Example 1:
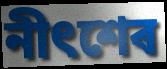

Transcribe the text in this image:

নীৎশেৰ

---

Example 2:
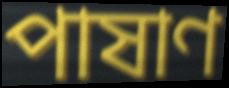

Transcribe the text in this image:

পাষাণ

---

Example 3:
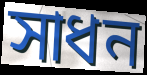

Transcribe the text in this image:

সাধন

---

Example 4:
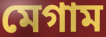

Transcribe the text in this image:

মেগাম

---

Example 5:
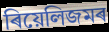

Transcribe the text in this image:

ৰিয়েলিজমৰ